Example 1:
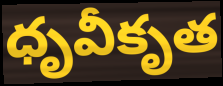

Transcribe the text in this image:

ధృవీకృత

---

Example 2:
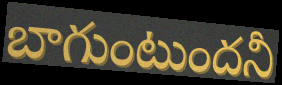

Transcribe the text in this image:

బాగుంటుందనీ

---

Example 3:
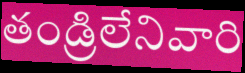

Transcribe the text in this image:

తండ్రిలేనివారి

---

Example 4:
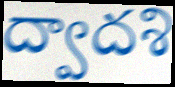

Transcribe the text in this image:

ద్వాదశి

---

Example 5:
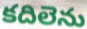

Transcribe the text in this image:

కదిలెను